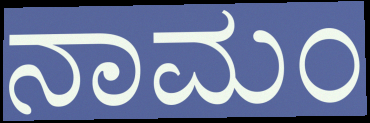
ನಾಮಂ